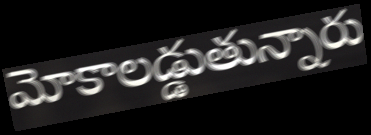
మోకాలడ్డుతున్నారు